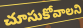
చూసుకోవాలని